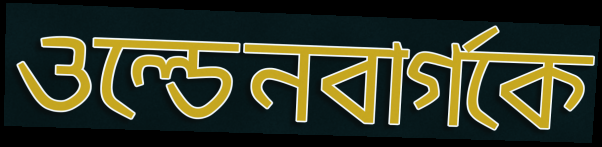
ওল্ডেনবার্গকে